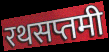
रथसप्तमी